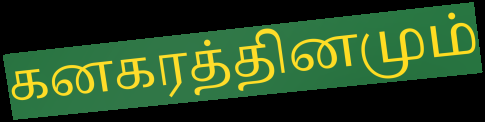
கனகரத்தினமும்